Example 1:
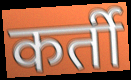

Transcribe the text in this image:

कर्ती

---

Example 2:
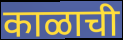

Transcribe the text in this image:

काळाची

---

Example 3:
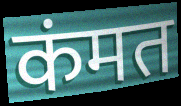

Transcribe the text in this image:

कंमत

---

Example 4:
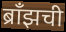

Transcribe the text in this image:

ब्राँझची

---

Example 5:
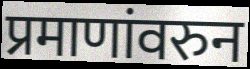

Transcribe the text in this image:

प्रमाणांवरुन